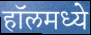
हॉलमध्ये